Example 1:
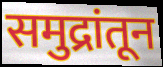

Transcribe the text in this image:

समुद्रांतून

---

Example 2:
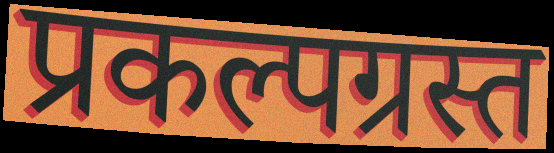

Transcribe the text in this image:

प्रकल्पग्रस्त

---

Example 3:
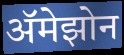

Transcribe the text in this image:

ॲमेझोन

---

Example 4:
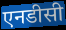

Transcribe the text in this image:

एनडीसी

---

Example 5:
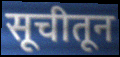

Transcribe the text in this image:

सूचीतून